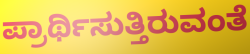
ಪ್ರಾರ್ಥಿಸುತ್ತಿರುವಂತೆ